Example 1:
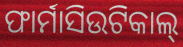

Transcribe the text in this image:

ଫାର୍ମାସିଉଟିକାଲ୍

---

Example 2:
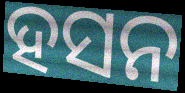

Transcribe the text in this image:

ହସନ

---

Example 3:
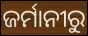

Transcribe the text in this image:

ଜର୍ମାନୀରୁ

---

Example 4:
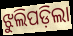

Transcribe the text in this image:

ଝୁଲିପଡ଼ିଲା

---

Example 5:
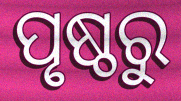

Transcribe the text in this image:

ପୃଷ୍ଠରୁ